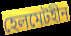
হেলমেটহীন